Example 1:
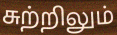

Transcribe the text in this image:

சுற்றிலும்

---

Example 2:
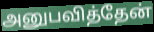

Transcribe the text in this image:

அனுபவித்தேன்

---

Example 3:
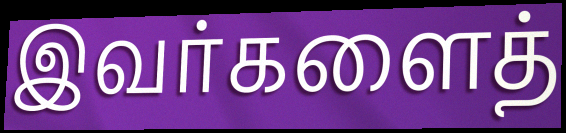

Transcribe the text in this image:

இவர்களைத்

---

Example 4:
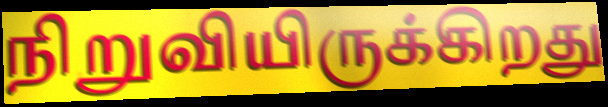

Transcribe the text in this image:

நிறுவியிருக்கிறது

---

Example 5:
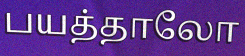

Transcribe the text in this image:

பயத்தாலோ